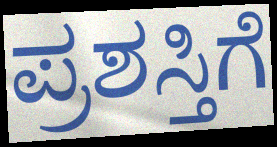
ಪ್ರಶಸ್ತಿಗೆ